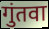
गुंतवा